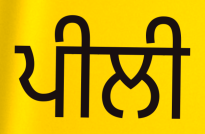
ਪੀਲੀ